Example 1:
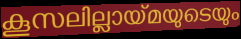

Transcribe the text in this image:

കൂസലില്ലായ്മയുടെയും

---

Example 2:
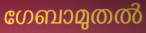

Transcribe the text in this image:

ഗേബാമുതൽ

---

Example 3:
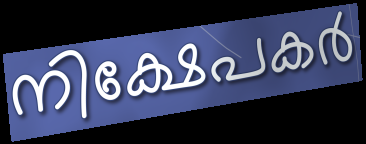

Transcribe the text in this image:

നിക്ഷേപകർ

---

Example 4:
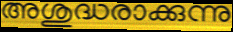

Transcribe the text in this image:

അശുദ്ധരാക്കുന്നു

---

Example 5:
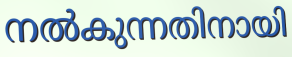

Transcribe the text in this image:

നൽകുന്നതിനായി